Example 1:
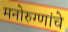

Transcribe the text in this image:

मनोरुग्णांचे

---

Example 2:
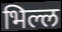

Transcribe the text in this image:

भिल्ल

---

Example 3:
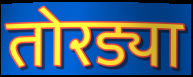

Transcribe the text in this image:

तोरड्या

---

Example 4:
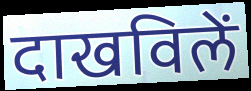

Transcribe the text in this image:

दाखविलें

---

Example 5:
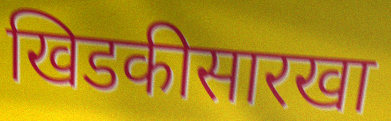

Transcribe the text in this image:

खिडकीसारखा